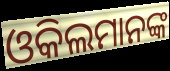
ଓକିଲମାନଙ୍କ